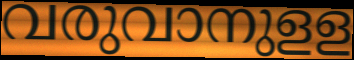
വരുവാനുളള